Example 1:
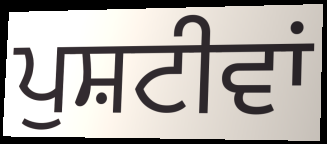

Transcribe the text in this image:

ਪੁਸ਼ਟੀਵਾਂ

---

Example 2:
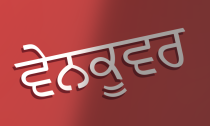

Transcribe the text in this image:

ਵੇਨਕੂਵਰ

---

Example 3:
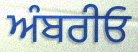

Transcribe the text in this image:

ਅੰਬਰੀਓ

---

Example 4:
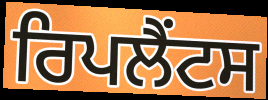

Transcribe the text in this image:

ਰਿਪਲੈਂਟਸ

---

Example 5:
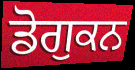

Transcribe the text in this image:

ਡੋਗੁਕਨ